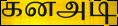
கனஅடி